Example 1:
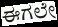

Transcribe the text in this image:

ಈಗಲೇ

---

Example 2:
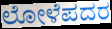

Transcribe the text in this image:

ಲೋಳೆಪದರ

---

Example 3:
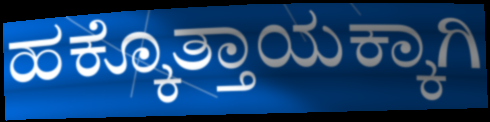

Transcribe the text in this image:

ಹಕ್ಕೊತ್ತಾಯಕ್ಕಾಗಿ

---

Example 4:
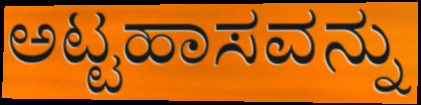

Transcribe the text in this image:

ಅಟ್ಟಹಾಸವನ್ನು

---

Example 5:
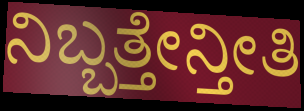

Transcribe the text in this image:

ನಿಬ್ಬತ್ತೇನ್ತೀತಿ